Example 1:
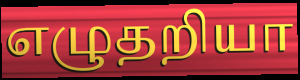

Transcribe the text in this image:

எழுதறியா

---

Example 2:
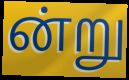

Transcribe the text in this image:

ன்று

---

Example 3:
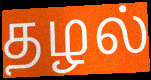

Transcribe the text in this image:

தழல்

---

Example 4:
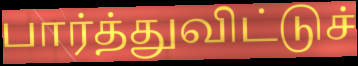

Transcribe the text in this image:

பார்த்துவிட்டுச்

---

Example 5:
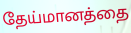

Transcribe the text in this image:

தேய்மானத்தை